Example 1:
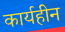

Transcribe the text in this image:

कार्यहीन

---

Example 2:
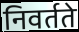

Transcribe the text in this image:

निवर्तते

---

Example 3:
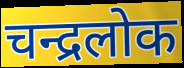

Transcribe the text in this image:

चन्द्रलोक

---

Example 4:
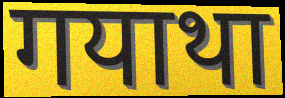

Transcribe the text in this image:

गयाथा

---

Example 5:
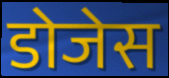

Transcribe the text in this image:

डोजेस